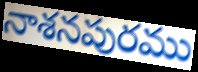
నాశనపురము